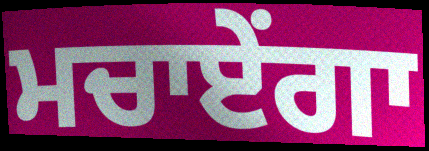
ਮਚਾਏਂਗਾ